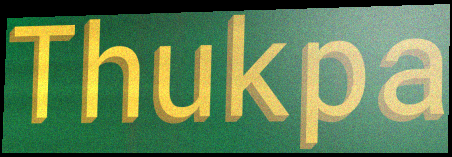
Thukpa